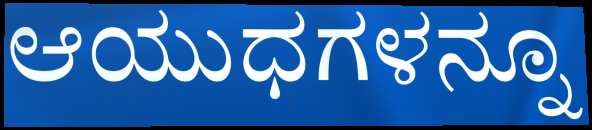
ಆಯುಧಗಳನ್ನೂ